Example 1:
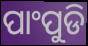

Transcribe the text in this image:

ପାଂପୁଡି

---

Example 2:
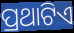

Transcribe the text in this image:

ପ୍ରଥାଟିଏ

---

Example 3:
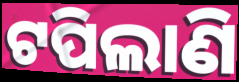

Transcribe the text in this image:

ଟପିଲାଣି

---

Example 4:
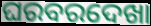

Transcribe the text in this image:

ଘରବରଦେଖା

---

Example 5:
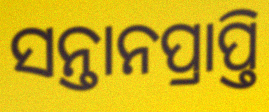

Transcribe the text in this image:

ସନ୍ତାନପ୍ରାପ୍ତି